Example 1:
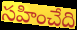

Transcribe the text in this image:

సహించేది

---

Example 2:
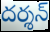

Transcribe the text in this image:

దర్శన్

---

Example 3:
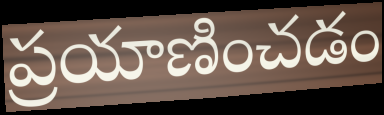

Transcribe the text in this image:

ప్రయాణించడం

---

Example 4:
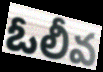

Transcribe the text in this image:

ఓలీవ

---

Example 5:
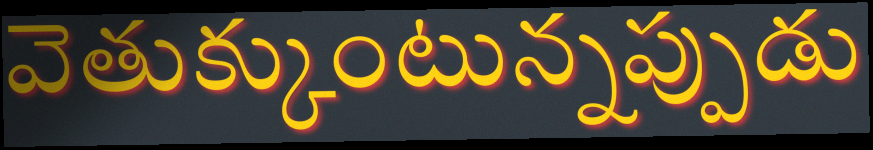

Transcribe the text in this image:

వెతుక్కుంటున్నప్పుడు